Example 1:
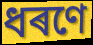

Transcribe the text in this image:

ধৰণে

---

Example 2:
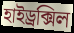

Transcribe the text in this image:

হাইড্ৰক্সিল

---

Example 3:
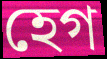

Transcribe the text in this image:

হেগ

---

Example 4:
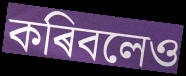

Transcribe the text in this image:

কৰিবলেও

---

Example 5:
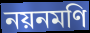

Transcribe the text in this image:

নয়নমণি